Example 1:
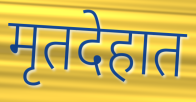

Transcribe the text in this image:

मृतदेहात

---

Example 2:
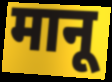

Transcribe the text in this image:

मानू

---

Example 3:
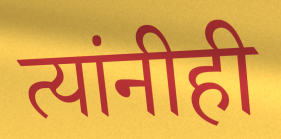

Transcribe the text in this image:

त्यांनीही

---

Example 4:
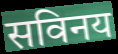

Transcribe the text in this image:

सविनय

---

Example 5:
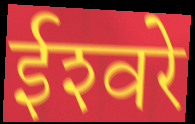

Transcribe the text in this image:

ईश्वरे